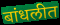
बांधलीत